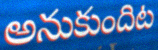
అనుకుందిట